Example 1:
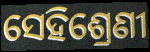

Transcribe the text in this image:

ସେହିଶ୍ରେଣୀ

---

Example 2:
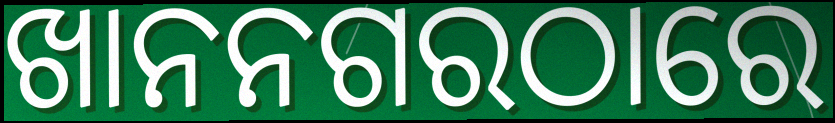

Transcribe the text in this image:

ଖାନନଗରଠାରେ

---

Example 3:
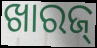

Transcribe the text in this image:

ଖାରଜ୍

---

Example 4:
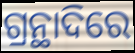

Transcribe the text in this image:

ଗ୍ରନ୍ଥାଦିରେ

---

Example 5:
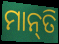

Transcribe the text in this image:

ମାନ୍‌ତି